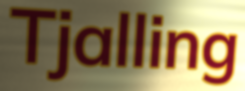
Tjalling